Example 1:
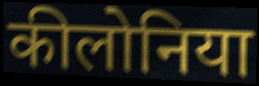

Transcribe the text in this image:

कीलोनिया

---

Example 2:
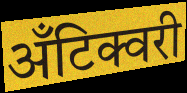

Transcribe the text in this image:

अँटिक्वरी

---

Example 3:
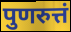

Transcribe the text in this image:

पुणरुत्तं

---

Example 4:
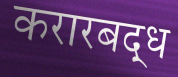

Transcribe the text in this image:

करारबद्ध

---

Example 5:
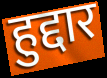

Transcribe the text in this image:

हुद्दार